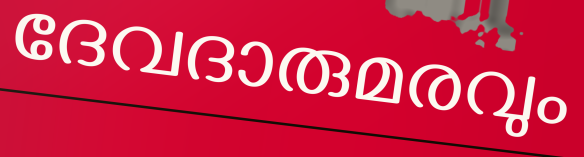
ദേവദാരുമരവും